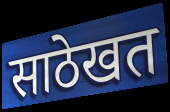
साठेखत